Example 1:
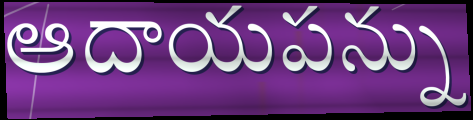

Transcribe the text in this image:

ఆదాయపన్ను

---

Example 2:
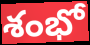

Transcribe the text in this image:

శంభో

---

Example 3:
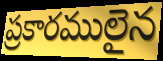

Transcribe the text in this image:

ప్రకారములైన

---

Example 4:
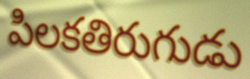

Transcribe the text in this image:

పిలకతిరుగుడు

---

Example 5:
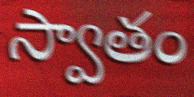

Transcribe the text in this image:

స్వాతం